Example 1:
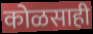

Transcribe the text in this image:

कोळसाही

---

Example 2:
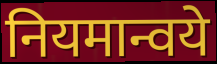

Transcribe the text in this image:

नियमान्वये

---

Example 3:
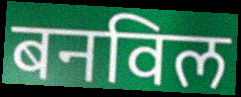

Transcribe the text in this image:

बनविल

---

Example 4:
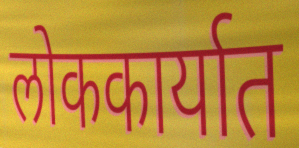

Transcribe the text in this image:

लोककार्यात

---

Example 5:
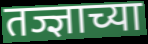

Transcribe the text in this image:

तज्ज्ञाच्या